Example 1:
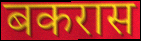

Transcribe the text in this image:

बकरास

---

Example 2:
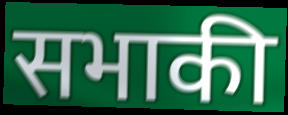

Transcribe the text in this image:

सभाकी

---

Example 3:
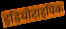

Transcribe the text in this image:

इडियोटाइपिक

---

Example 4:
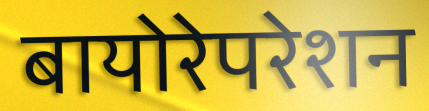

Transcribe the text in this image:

बायोरेपरेशन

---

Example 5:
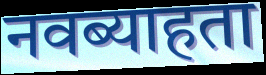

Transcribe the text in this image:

नवब्याहता